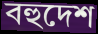
বহুদেশ